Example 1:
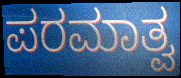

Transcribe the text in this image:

ಪರಮಾತ್ವ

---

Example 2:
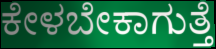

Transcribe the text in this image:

ಕೇಳಬೇಕಾಗುತ್ತೆ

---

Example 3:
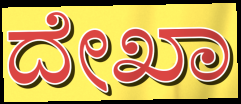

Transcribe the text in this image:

ದೇಖಾ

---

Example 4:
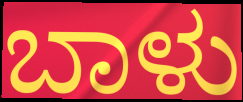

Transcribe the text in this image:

ಬಾಳು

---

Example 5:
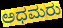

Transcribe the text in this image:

ಅಧಮರು